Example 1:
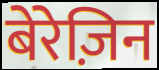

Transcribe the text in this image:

बेरेज़िन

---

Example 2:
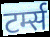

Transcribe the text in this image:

टर्म्स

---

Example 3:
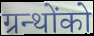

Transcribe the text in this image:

ग्रन्थोंको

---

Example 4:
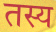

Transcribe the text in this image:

तस्य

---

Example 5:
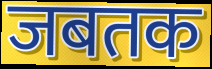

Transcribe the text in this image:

जबतक